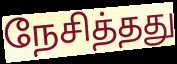
நேசித்தது